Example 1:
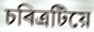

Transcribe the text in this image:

চৰিত্ৰটিয়ে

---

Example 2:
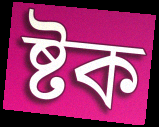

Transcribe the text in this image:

ষ্টক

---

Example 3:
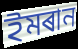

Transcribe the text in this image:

ইমৰান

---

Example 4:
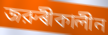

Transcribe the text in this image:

জৰুৰীকালীন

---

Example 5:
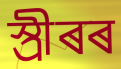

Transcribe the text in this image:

স্ত্ৰীৰৰ